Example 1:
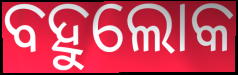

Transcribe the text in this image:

ବହୁଲୋକ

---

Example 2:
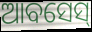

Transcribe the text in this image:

ଆବସେସ୍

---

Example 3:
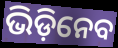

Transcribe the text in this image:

ଭିଡ଼ିନେବ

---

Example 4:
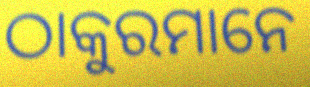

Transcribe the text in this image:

ଠାକୁରମାନେ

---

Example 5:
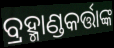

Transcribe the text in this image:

ବ୍ରହ୍ମାଣ୍ଡକର୍ତ୍ତାଙ୍କ